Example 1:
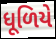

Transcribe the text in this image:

ધૂળિયે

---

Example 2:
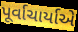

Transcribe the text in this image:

પૂર્વાચાર્યાએ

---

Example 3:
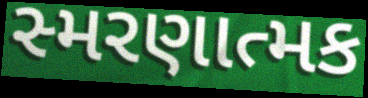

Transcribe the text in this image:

સ્મરણાત્મક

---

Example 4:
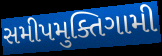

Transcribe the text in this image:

સમીપમુક્તિગામી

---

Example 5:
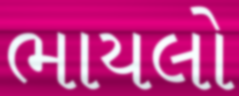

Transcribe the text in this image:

ભાયલો